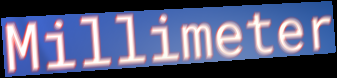
Millimeter